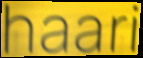
haari